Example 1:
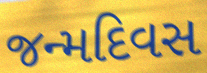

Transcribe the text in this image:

જન્મદિવસ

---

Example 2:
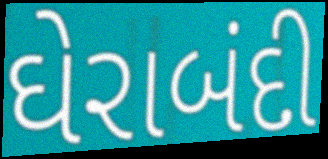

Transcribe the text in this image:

ઘેરાબંદી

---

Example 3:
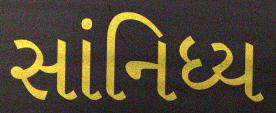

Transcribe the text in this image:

સાંનિધ્ય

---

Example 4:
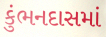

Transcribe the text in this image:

કુંભનદાસમાં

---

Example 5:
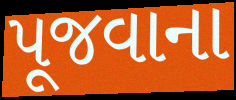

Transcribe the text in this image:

પૂજવાના